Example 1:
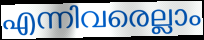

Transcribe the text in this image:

എന്നിവരെല്ലാം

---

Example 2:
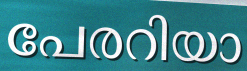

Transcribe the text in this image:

പേരറിയാ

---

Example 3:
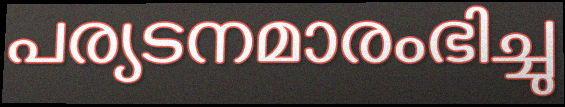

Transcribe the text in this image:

പര്യടനമാരംഭിച്ചു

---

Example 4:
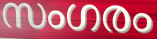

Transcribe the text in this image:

സംഗരം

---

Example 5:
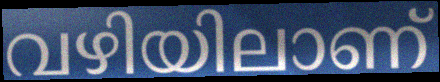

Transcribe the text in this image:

വഴിയിലാണ്